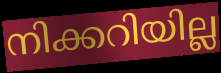
നിക്കറിയില്ല